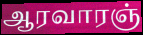
ஆரவாரஞ்